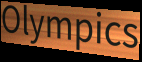
Olympics